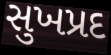
સુખપ્રદ